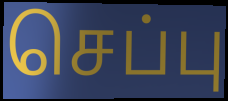
செப்பு